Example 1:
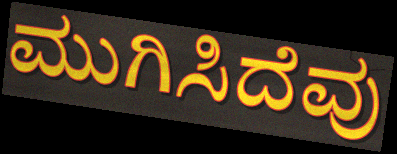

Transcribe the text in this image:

ಮುಗಿಸಿದೆವು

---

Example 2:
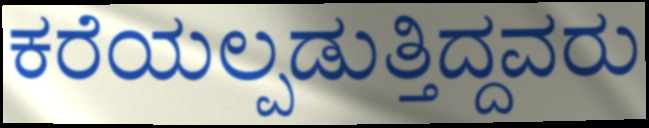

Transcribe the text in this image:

ಕರೆಯಲ್ಪಡುತ್ತಿದ್ದವರು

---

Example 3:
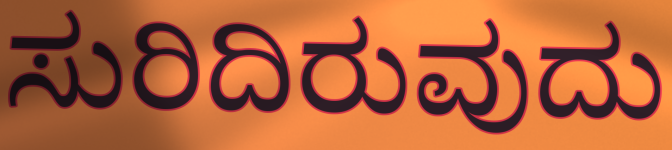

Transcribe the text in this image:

ಸುರಿದಿರುವುದು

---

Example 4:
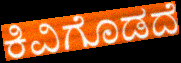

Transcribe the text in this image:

ಕಿವಿಗೊಡದೆ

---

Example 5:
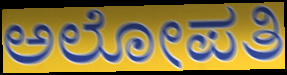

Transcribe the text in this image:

ಅಲೋಪತಿ